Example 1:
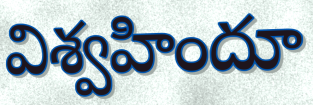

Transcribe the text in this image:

విశ్వహిందూ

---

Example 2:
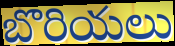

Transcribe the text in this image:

బొరియలు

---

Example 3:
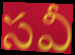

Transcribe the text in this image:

సవీ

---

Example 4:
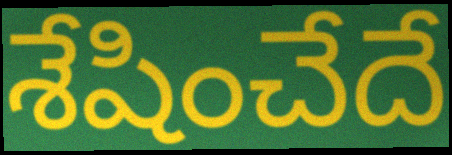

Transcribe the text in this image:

శేషించేదే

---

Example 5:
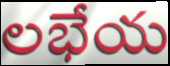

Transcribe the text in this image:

లభేయ